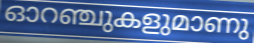
ഓറഞ്ചുകളുമാണു